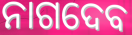
ନାଗଦେବ